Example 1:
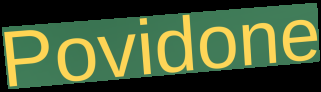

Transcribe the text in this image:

Povidone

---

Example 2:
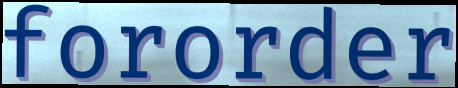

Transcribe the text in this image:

fororder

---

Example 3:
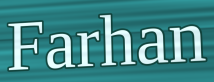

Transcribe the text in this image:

Farhan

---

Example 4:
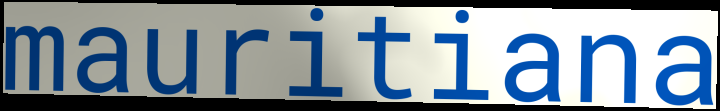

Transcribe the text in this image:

mauritiana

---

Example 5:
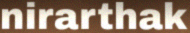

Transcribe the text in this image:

nirarthak